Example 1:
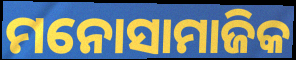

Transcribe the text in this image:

ମନୋସାମାଜିକ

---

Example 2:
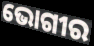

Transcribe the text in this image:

ଭୋଗୀର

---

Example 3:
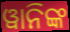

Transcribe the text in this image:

ୱାନିଙ୍କ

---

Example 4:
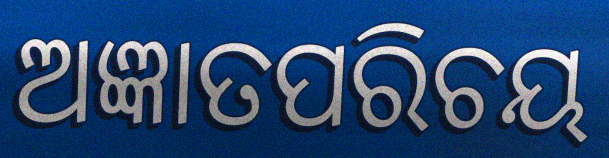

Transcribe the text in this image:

ଅଜ୍ଞାତପରିଚୟ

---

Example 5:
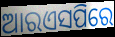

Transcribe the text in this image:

ଆରଏସପିରେ